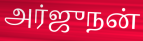
அர்ஜுநன்